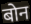
बोन